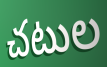
చటుల